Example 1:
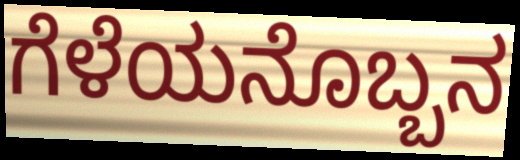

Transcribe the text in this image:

ಗೆಳೆಯನೊಬ್ಬನ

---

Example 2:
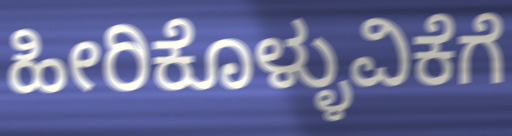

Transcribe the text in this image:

ಹೀರಿಕೊಳ್ಳುವಿಕೆಗೆ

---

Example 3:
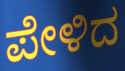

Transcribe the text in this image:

ಪೇಳಿದ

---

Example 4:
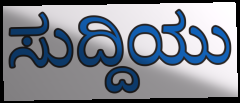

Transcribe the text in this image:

ಸುದ್ದಿಯು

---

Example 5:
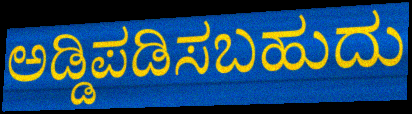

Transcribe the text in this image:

ಅಡ್ಡಿಪಡಿಸಬಹುದು